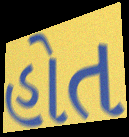
હોત